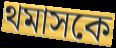
থমাসকে